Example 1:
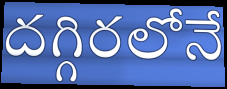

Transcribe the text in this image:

దగ్గిరలోనే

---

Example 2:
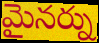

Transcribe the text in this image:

మైనర్ను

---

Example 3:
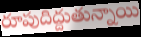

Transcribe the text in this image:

రూపుదిద్దుతున్నాయి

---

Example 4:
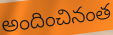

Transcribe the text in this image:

అందించినంత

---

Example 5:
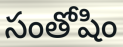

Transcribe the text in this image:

సంతోషిం